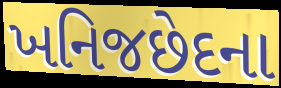
ખનિજછેદના